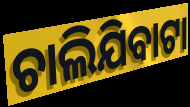
ଚାଲିଯିବାଟା